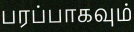
பரப்பாகவும்